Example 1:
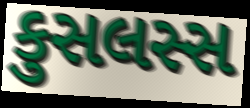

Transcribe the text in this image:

કુસલસ્સ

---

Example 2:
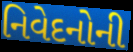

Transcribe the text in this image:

નિવેદનોની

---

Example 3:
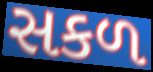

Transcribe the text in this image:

સકળ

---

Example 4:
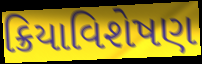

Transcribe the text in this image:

ક્રિયાવિશેષણ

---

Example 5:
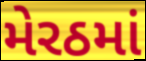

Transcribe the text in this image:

મેરઠમાં